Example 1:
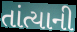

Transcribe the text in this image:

તાંત્યાની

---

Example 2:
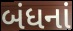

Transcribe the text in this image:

બંધનાં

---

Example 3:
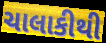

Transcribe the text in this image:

ચાલાકીથી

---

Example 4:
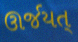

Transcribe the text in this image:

ઊર્જયત્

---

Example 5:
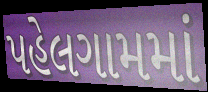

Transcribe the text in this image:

પહેલગામમાં